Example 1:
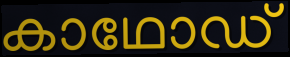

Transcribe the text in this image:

കാഥോഡ്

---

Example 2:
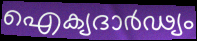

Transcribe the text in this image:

ഐക്യദാർഢ്യം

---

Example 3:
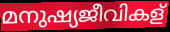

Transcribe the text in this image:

മനുഷ്യജീവികള്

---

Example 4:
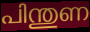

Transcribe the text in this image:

പിന്തുണ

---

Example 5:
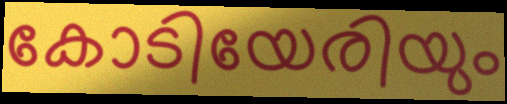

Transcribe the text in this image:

കോടിയേരിയും